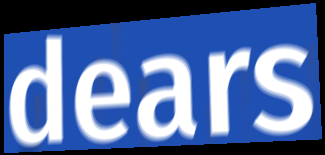
dears